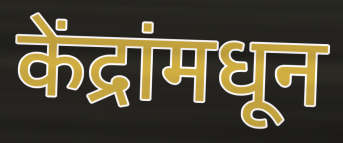
केंद्रांमधून